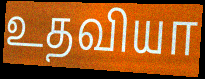
உதவியா